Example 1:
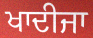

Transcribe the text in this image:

ਖਾਦੀਜਾ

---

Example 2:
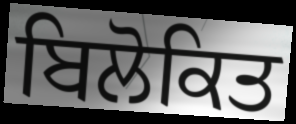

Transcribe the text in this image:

ਬਿਲੋਕਿਤ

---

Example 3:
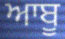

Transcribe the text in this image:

ਆਬੂ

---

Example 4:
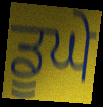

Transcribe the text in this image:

ਡੂਘੇ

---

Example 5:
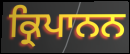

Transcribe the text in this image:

ਕ੍ਰਿਪਾਨਨ